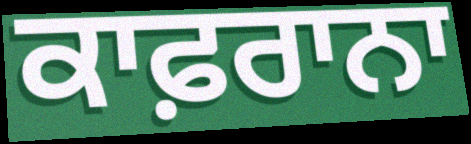
ਕਾਫ਼ਰਾਨਾ